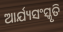
ଆର୍ଯ୍ୟସଂସ୍କୃତି